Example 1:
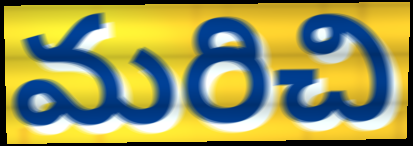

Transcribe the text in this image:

మరిచి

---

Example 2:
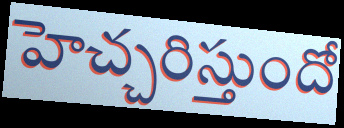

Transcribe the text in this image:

హెచ్చరిస్తుందో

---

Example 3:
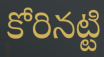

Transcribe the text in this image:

కోరినట్టి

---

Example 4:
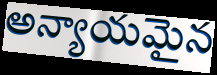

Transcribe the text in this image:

అన్యాయమైన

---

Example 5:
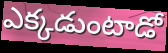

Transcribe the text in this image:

ఎక్కడుంటాడో